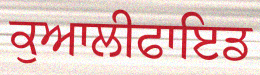
ਕੁਆਲੀਫਾਇਡ